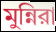
মুন্নিরা